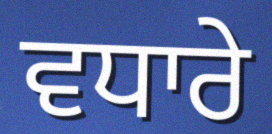
ਵਧਾਰੇ